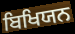
ਬਿਖਿਯਨ